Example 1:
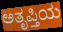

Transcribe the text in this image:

ಅತೃಪ್ತಿಯ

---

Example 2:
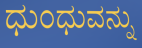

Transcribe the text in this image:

ಧುಂಧುವನ್ನು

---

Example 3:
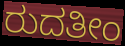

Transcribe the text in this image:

ರುದತೀಂ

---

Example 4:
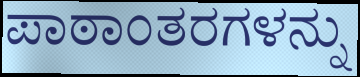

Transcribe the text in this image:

ಪಾಠಾಂತರಗಳನ್ನು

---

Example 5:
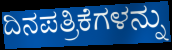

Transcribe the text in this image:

ದಿನಪತ್ರಿಕೆಗಳನ್ನು